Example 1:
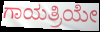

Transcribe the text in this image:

ಗಾಯತ್ರಿಯೇ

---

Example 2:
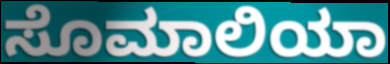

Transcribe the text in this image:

ಸೊಮಾಲಿಯಾ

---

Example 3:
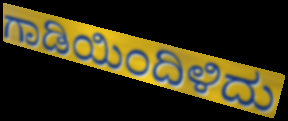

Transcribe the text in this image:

ಗಾಡಿಯಿಂದಿಳಿದು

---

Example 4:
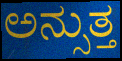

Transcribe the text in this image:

ಅನ್ಸುತ್ತ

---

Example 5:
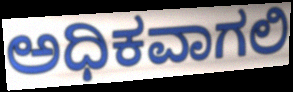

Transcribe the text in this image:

ಅಧಿಕವಾಗಲಿ